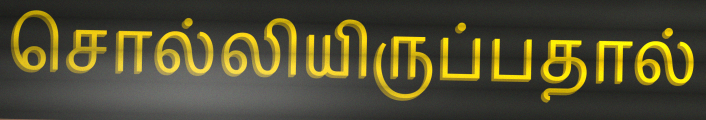
சொல்லியிருப்பதால்